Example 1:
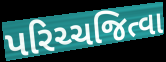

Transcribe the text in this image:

પરિચ્ચજિત્વા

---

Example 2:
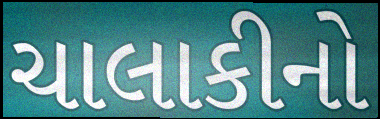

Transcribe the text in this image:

ચાલાકીનો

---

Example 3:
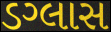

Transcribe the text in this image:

ડગ્લાસ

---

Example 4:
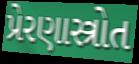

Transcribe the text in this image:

પ્રેરણાસ્ત્રોત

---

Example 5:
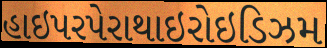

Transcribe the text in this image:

હાઇપરપેરાથાઇરોઇડિઝમ